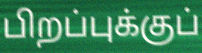
பிறப்புக்குப்